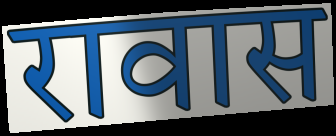
रावास